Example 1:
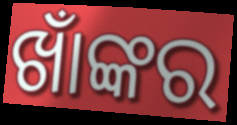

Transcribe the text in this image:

ଖାଁଙ୍କର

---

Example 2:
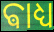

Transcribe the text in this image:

ଵାଧ୍ୟ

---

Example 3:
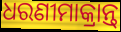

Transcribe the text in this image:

ଧରଣୀମାକ୍ରାନ୍ତ୍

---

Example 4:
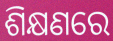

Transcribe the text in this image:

ଶିକ୍ଷଣରେ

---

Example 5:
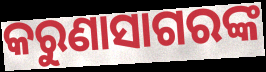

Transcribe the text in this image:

କରୁଣାସାଗରଙ୍କ